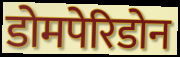
डोमपेरिडोन